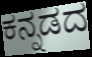
ಕನ್ನಡದ